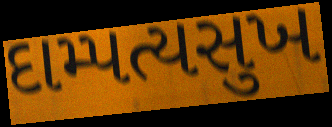
દામ્પત્યસુખ